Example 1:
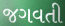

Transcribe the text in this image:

જગવતી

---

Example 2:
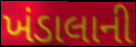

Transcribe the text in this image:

ખંડાલાની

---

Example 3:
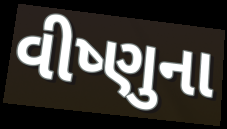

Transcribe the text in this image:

વીષ્ણુના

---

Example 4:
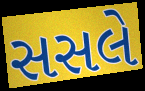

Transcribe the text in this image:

સસલે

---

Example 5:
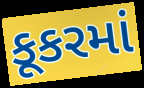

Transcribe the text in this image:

કૂકરમાં